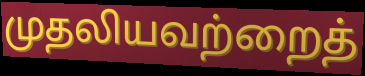
முதலியவற்றைத்